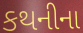
કથનીના